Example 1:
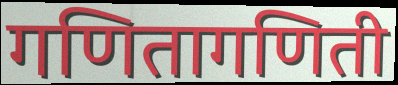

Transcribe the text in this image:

गणितागणिती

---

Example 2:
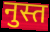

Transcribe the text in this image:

नुस्त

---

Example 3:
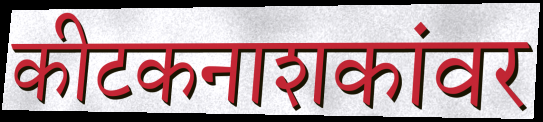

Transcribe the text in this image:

कीटकनाशकांवर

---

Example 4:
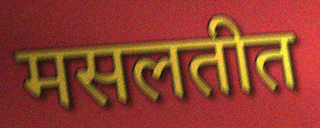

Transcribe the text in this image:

मसलतीत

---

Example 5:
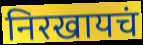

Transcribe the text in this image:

निरखायचं